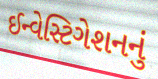
ઈન્વેસ્ટિગેશનનું